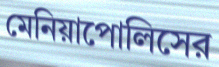
মেনিয়াপোলিসের